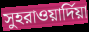
সুহরাওয়ার্দিয়া